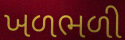
ખળભળી